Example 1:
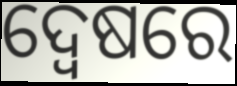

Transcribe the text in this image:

ଦ୍ୱେଷରେ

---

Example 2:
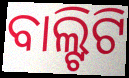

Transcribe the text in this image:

ବାଲ୍ଟିଟି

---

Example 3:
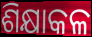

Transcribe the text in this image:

ଶିକ୍ଷାକଳ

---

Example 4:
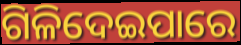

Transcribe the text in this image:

ଗିଳିଦେଇପାରେ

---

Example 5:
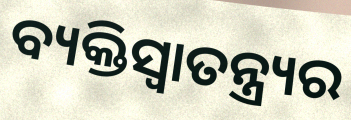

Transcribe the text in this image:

ବ୍ୟକ୍ତିସ୍ୱାତନ୍ତ୍ର୍ୟର